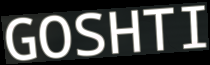
GOSHTI